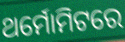
ଥର୍ମୋମିଟରେ